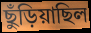
ছুঁড়িয়াছিল